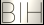
BIH